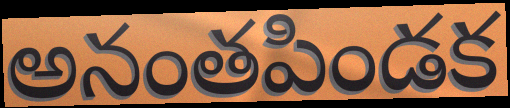
అనంతపిండక